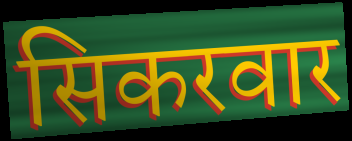
सिकरवार